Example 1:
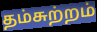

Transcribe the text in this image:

தம்சுற்றம்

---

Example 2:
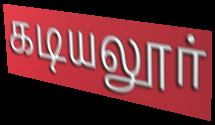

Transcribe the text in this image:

கடியலூர்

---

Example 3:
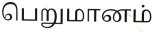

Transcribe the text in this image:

பெறுமானம்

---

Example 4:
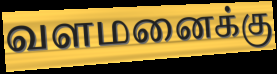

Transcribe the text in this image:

வளமனைக்கு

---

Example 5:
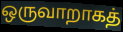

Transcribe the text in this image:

ஒருவாறாகத்